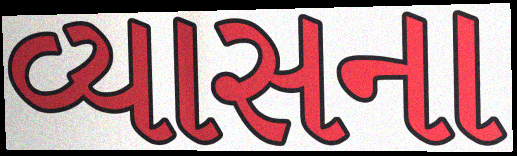
વ્યાસના